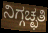
ನಿಗ್ಗಚ್ಛತಿ